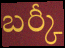
బర్కీ